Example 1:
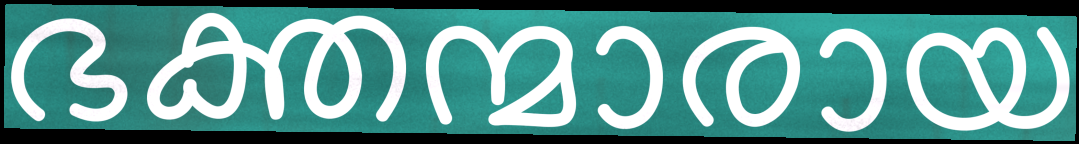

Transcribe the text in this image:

ഭക്തന്മാരായ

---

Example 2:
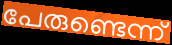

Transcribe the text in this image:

പേരുണ്ടെന്ന്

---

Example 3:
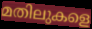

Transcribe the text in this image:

മതിലുകളെ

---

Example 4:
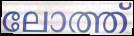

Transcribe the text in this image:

ലോത്ത്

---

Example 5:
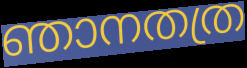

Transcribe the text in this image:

ഞാനതത്ര